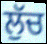
ਲੁੱਚ